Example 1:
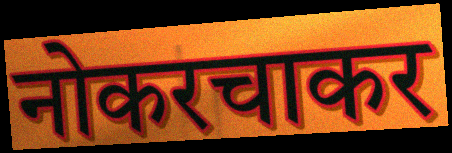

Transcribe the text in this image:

नोकरचाकर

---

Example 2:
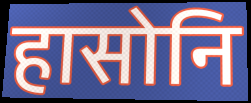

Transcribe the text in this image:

हासोनि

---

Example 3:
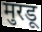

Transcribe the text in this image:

मुरडू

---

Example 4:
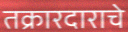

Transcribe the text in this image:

तक्रारदाराचे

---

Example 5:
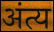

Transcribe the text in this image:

अंत्य